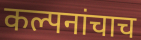
कल्पनांचाच